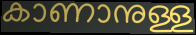
കാണാനുള്ള